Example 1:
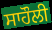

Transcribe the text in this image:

ਸਾਹੌਲੀ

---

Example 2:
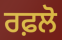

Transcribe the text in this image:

ਰਫ਼ਲੋ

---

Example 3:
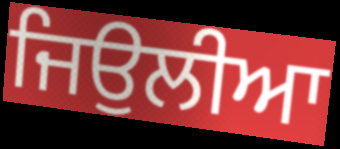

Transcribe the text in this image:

ਜਿਉਲੀਆ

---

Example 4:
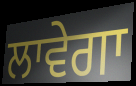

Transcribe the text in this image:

ਲਾਵੇਗਾ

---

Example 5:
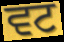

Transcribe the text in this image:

ਵਟ